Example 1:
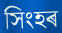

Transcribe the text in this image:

সিংহৰ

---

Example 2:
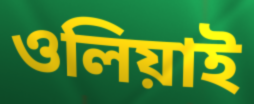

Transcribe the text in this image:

ওলিয়াই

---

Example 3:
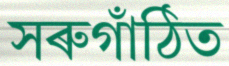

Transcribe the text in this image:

সৰুগাঁঠিত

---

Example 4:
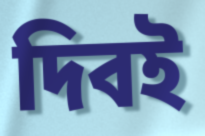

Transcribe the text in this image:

দিবই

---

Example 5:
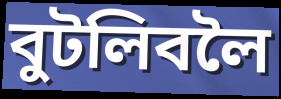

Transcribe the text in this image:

বুটলিবলৈ